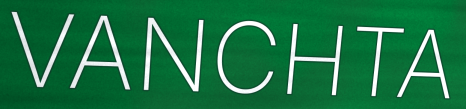
VANCHTA